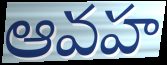
ఆవహ